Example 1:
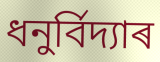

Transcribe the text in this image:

ধনুৰ্বিদ্যাৰ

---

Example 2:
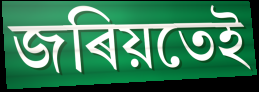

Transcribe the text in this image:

জৰিয়তেই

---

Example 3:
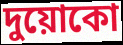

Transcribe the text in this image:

দুয়োকো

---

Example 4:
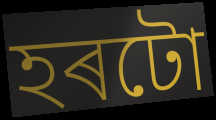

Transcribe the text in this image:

হৰটো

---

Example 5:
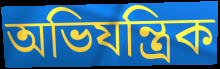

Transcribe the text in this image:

অভিযন্ত্ৰিক